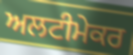
ਅਲਟੀਮੇਕਰ